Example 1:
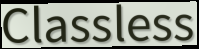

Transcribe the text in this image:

Classless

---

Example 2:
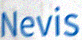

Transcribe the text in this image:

Nevis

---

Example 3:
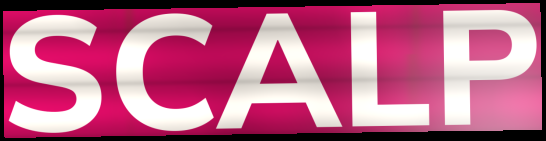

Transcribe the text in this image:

SCALP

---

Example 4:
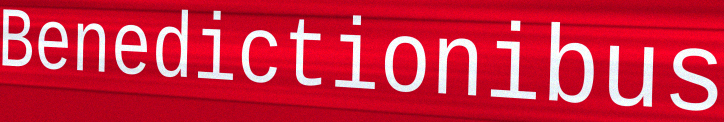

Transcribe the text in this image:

Benedictionibus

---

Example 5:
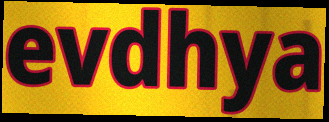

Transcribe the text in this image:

evdhya